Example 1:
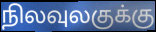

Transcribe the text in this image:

நிலவுலகுக்கு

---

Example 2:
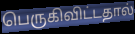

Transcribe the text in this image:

பெருகிவிட்டதால்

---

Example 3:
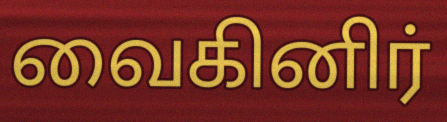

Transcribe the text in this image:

வைகினிர்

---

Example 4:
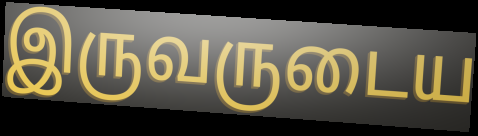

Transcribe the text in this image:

இருவருடைய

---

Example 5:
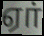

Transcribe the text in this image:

ஏர்